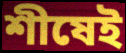
শীষেই